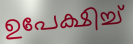
ഉപേക്ഷിച്ച്